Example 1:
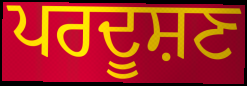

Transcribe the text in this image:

ਪਰਦੂਸ਼ਣ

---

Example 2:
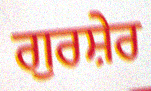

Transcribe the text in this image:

ਗੁਰਸ਼ੇਰ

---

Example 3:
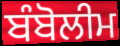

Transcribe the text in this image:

ਬੰਬੋਲੀਮ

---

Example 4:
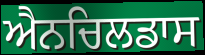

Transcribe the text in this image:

ਐਨਚਿਲਡਾਸ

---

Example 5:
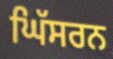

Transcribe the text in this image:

ਘਿੱਸਰਨ